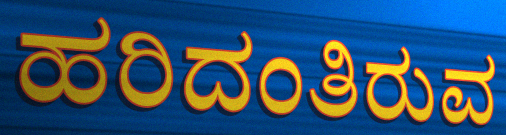
ಹರಿದಂತಿರುವ